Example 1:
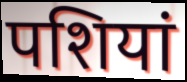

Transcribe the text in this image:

पशियां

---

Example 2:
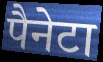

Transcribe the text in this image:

पैनेटा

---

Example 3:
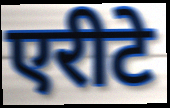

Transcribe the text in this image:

एरीटे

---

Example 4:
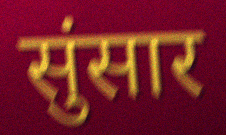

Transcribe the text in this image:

सुंसार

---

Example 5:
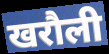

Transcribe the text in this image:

खरौली